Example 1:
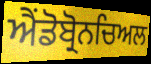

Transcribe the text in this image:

ਐਂਡੋਬ੍ਰੋਨਚਿਅਲ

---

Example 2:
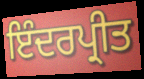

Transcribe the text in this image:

ਇੰਦਰਪ੍ਰੀਤ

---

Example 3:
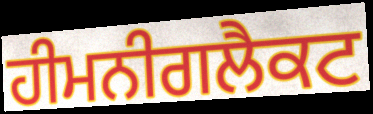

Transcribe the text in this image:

ਹੀਮਨੀਗਲੈਕਟ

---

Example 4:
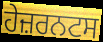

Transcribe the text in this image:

ਹੇਜ਼ਰਨਟਸ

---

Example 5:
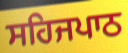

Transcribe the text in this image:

ਸਹਿਜਪਾਠ